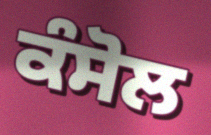
ਕੰਸੋਲ